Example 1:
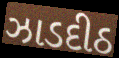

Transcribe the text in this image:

ઝાડદીઠ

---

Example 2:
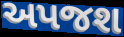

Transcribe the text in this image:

અપજશ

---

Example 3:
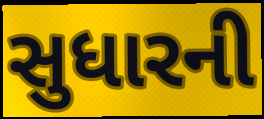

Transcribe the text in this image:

સુધારની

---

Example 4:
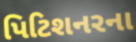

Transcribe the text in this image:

પિટિશનરના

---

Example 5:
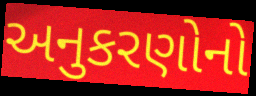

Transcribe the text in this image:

અનુકરણોનો